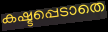
കഷ്ടപ്പെടാതെ